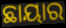
ଛାୟାର